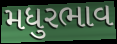
મધુરભાવ